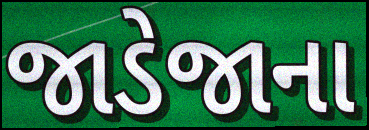
જાડેજાના